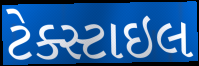
ટેક્સ્ટાઇલ